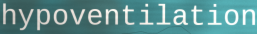
hypoventilation